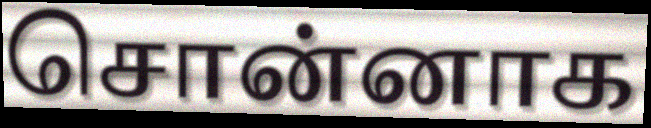
சொன்னாக